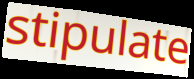
stipulate